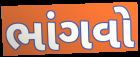
ભાંગવો